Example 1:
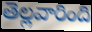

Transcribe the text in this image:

తెల్లవారింది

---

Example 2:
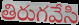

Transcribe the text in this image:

తిరుగవేసి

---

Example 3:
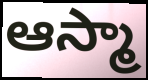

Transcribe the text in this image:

ఆస్మా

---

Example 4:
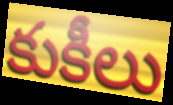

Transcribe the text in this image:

కుకీలు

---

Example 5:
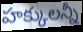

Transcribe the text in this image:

హక్కులన్నీ